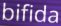
bifida